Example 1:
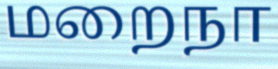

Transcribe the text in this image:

மறைநா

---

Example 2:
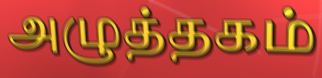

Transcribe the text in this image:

அழுத்தகம்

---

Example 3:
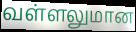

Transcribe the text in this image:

வள்ளலுமான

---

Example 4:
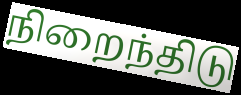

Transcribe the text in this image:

நிறைந்திடு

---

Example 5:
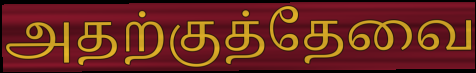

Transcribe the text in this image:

அதற்குத்தேவை